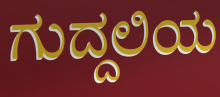
ಗುದ್ದಲಿಯ